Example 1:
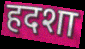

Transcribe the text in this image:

हदशा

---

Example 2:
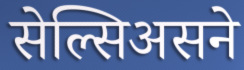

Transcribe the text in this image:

सेल्सिअसने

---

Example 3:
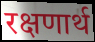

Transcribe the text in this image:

रक्षणार्थ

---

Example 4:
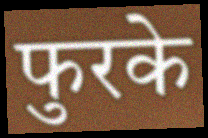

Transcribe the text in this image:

फुरके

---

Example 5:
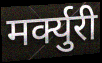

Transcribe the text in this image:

मर्क्युरी